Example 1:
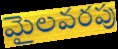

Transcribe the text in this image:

మైలవరపు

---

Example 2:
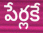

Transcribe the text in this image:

పేర్లకే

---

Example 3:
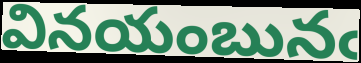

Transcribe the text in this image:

వినయంబునఁ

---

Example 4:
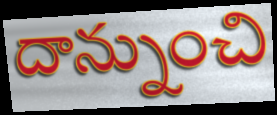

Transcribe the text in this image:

దాన్నుంచి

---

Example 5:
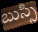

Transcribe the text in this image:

బుస్సి